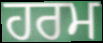
ਹਰਮ